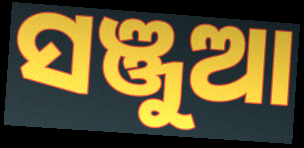
ସଞ୍ଜୁଆ